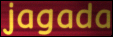
jagada